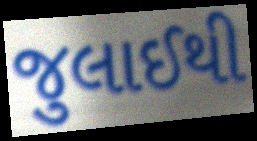
જુલાઈથી